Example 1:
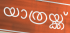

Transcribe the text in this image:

യാത്രയ്ക്ക്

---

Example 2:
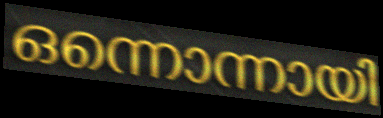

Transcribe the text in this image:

ഒന്നൊന്നായി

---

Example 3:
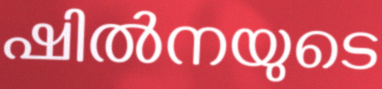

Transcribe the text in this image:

ഷിൽനയുടെ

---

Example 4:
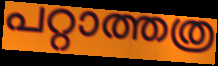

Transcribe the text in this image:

പറ്റാത്തത്ര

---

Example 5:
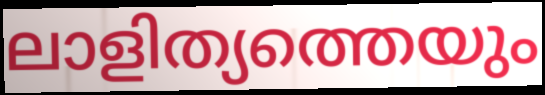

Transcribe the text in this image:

ലാളിത്യത്തെയും